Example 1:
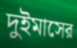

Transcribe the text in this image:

দুইমাসের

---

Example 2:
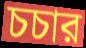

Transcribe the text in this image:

চচার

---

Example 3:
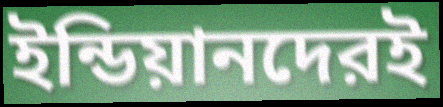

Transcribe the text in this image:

ইন্ডিয়ানদেরই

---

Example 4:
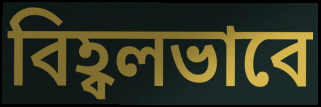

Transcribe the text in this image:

বিহ্বলভাবে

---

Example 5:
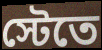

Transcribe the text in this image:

স্টেতে